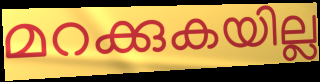
മറക്കുകയില്ല